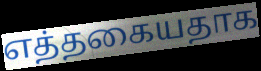
எத்தகையதாக